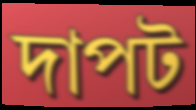
দাপট